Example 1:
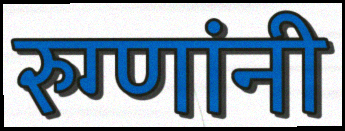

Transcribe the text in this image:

रुग्णांनी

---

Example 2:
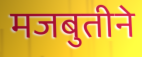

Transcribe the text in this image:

मजबुतीने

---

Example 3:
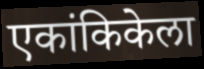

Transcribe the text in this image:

एकांकिकेला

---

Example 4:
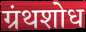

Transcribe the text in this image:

ग्रंथशोध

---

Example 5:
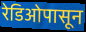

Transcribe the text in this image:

रेडिओपासून